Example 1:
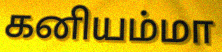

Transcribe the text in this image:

கனியம்மா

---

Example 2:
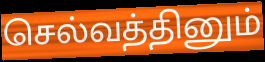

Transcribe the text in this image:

செல்வத்தினும்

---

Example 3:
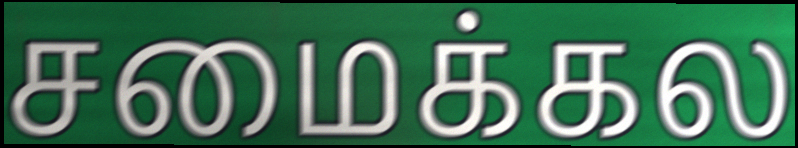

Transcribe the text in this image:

சமைக்கல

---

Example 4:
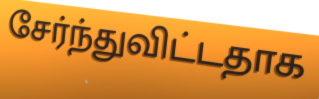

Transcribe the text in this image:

சேர்ந்துவிட்டதாக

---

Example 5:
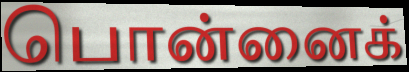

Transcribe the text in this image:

பொன்னைக்